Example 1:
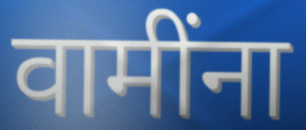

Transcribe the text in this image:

वामींना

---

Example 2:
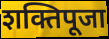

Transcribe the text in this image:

शक्तिपूजा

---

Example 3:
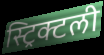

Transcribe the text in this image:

स्ट्रिक्टली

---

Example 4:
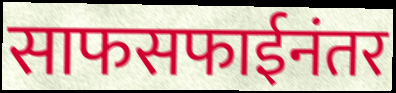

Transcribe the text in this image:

साफसफाईनंतर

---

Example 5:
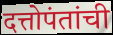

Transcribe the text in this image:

दत्तोपंतांची